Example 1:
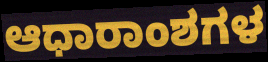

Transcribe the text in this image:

ಆಧಾರಾಂಶಗಳ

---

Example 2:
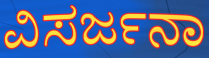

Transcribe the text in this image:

ವಿಸರ್ಜನಾ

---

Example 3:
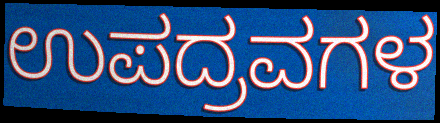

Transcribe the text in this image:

ಉಪದ್ರವಗಳ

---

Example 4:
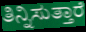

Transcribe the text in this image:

ತಿನ್ನಿಸುತ್ತಾರೆ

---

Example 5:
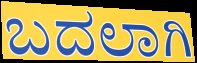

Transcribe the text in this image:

ಬದಲಾಗಿ